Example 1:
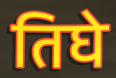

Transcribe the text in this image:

तिघे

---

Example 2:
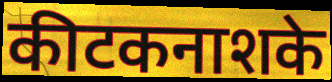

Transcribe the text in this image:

कीटकनाशके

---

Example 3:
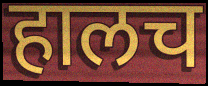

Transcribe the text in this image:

हालच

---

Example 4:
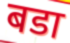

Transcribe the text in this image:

बडा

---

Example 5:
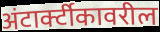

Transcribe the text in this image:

अंटार्क्टीकावरील